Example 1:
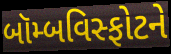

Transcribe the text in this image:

બૉમ્બવિસ્ફોટને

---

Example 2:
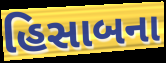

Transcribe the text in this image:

હિસાબના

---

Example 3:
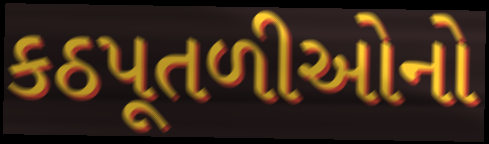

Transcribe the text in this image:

કઠપૂતળીઓનો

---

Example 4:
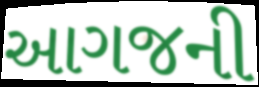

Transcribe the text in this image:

આગજની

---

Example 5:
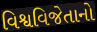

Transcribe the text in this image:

વિશ્વવિજેતાનો